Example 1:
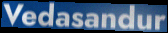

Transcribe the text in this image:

Vedasandur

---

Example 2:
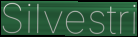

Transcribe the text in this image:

Silvestri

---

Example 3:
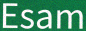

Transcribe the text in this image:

Esam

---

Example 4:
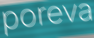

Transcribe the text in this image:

poreva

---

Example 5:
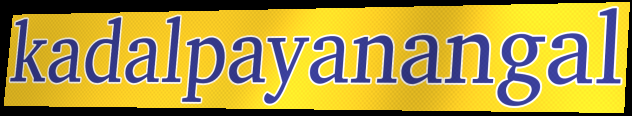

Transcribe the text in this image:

kadalpayanangal